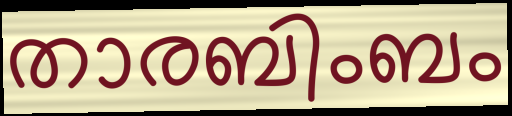
താരബിംബം